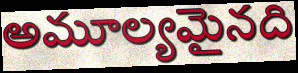
అమూల్యమైనది